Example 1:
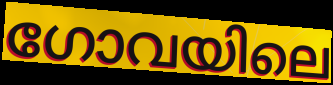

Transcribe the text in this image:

ഗോവയിലെ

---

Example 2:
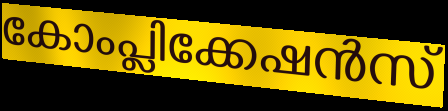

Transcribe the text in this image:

കോംപ്ലിക്കേഷൻസ്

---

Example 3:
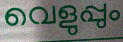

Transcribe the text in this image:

വെളുപ്പും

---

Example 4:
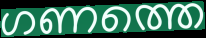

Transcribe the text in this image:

ഗണത്തെ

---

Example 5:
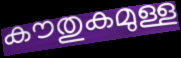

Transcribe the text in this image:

കൗതുകമുള്ള